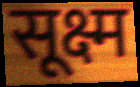
सूक्ष्म